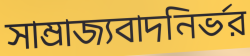
সাম্রাজ্যবাদনির্ভর